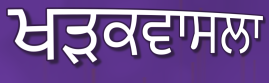
ਖੜਕਵਾਸਲਾ